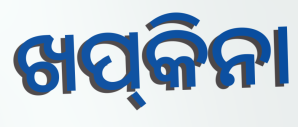
ଖପ୍‌କିନା